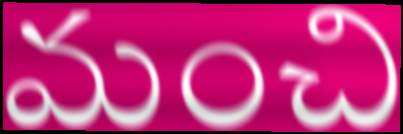
మంచి